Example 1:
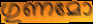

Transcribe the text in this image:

ഗുണമോ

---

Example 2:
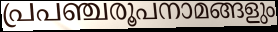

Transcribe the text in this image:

പ്രപഞ്ചരൂപനാമങ്ങളും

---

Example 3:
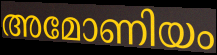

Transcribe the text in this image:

അമോണിയം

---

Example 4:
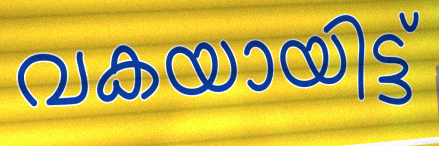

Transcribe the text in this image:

വകയായിട്ട്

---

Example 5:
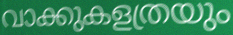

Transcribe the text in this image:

വാക്കുകളത്രയും